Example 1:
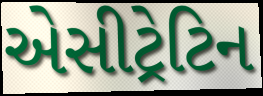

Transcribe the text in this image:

એસીટ્રેટિન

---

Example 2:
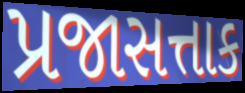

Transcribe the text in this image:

પ્રજાસત્તાક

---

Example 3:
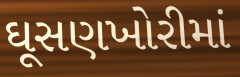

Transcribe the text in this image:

ઘૂસણખોરીમાં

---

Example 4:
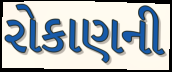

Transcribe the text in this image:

રોકાણની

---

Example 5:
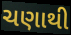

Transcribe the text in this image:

ચણાથી